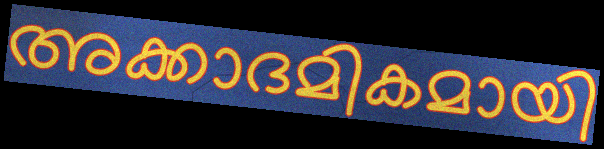
അക്കാദമികമായി